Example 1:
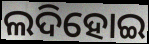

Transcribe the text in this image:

ଲଦିହୋଇ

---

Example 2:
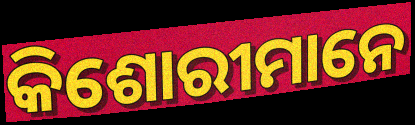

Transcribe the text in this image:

କିଶୋରୀମାନେ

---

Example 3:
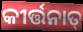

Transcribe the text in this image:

କୀର୍ତ୍ତନାତ୍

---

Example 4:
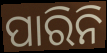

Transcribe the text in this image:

ପାରିନି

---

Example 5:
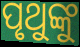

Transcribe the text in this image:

ପୃଥୁଙ୍କୁ